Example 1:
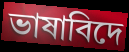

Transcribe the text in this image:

ভাষাবিদে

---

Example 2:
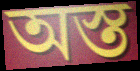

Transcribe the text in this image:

অস্ত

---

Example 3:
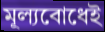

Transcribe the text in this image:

মূল্যবোধেই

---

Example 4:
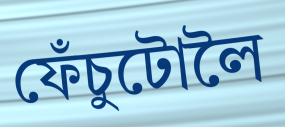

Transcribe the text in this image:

ফেঁচুটোলৈ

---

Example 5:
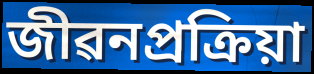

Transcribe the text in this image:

জীৱনপ্ৰক্ৰিয়া